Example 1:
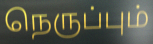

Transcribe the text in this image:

நெருப்பும்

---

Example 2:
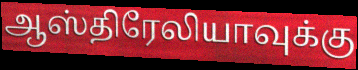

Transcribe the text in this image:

ஆஸ்திரேலியாவுக்கு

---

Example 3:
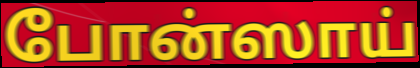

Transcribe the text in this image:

போன்ஸாய்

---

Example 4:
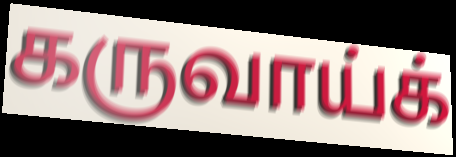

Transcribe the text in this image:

கருவாய்க்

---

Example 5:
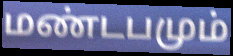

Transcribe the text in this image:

மண்டபமும்